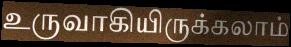
உருவாகியிருக்கலாம்